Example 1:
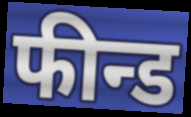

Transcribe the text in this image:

फीन्ड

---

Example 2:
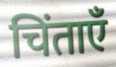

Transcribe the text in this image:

चिंताएँ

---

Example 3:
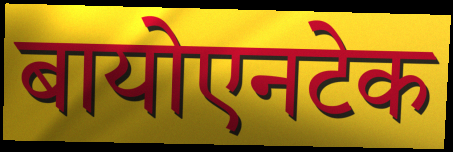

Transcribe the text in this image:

बायोएनटेक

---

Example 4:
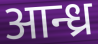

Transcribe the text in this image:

आन्ध्र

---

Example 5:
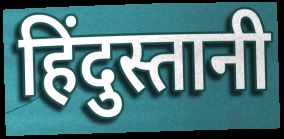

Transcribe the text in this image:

हिंदुस्तानी